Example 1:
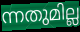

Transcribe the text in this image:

ന്നതുമില്ല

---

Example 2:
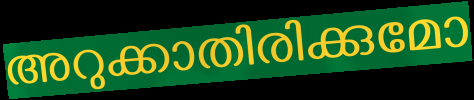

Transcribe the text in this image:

അറുക്കാതിരിക്കുമോ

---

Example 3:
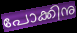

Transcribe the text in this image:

പോക്കിനു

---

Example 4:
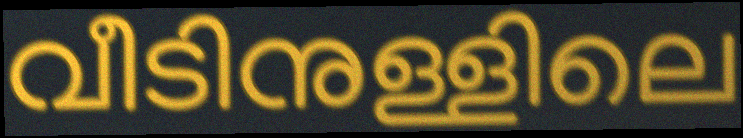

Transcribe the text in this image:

വീടിനുള്ളിലെ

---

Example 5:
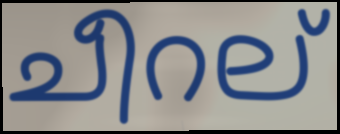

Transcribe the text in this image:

ചീറല്